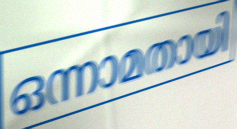
ഒന്നാമതായി